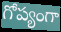
గోప్యంగా